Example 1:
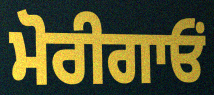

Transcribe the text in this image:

ਮੋਰੀਗਾਓਂ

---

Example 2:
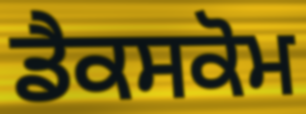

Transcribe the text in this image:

ਡੈਕਸਕੋਮ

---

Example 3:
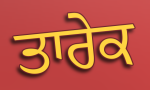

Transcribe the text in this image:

ਤਾਰੇਕ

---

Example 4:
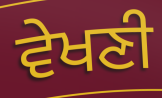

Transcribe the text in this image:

ਵੇਖਣੀ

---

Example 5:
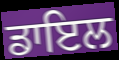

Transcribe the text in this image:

ਡਾਇਲ